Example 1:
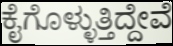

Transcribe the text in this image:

ಕೈಗೊಳ್ಳುತ್ತಿದ್ದೇವೆ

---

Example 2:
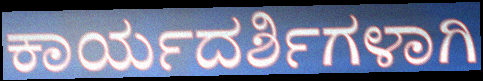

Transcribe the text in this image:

ಕಾರ್ಯದರ್ಶಿಗಳಾಗಿ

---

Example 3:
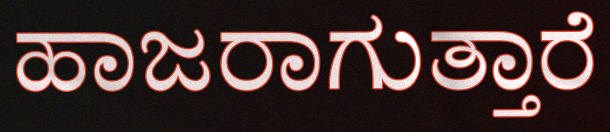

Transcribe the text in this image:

ಹಾಜರಾಗುತ್ತಾರೆ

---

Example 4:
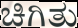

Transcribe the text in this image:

ಚಿಗಿತು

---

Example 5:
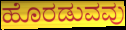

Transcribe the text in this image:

ಹೊರಡುವವು